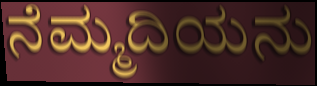
ನೆಮ್ಮದಿಯನು